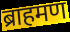
ब्राहमण